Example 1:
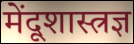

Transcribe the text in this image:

मेंदूशास्त्रज्ञ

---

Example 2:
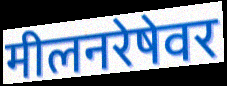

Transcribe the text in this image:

मीलनरेषेवर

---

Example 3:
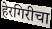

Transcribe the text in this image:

हेरगिरीचा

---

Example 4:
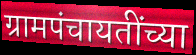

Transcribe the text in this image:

ग्रामपंचायतींच्या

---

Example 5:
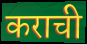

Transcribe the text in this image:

कराची